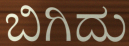
ಬಿಗಿದು